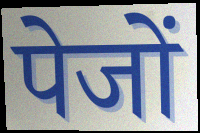
पेजों